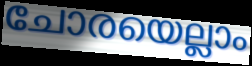
ചോരയെല്ലാം